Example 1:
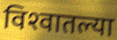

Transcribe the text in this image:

विश्वातल्या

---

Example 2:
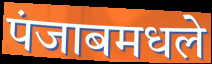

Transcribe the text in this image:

पंजाबमधले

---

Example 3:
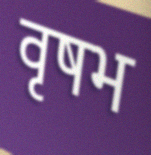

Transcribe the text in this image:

वृषभ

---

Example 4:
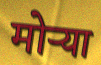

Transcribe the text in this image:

मोऱ्या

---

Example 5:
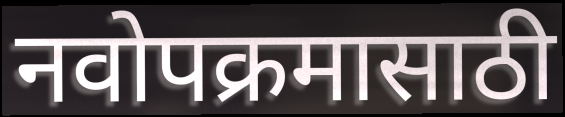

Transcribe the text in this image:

नवोपक्रमासाठी